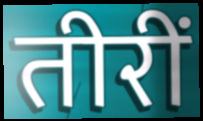
तीरीं